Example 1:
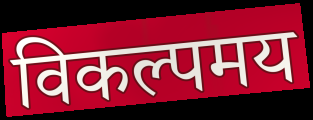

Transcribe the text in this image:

विकल्पमय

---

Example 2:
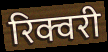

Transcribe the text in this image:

रिक्वरी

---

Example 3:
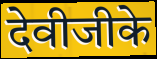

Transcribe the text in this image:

देवीजीके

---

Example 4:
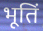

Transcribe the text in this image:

भूतिं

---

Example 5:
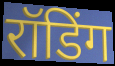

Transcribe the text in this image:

रॉडिंग